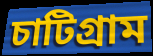
চাটিগ্রাম